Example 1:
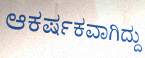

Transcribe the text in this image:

ಆಕರ್ಷಕವಾಗಿದ್ದು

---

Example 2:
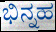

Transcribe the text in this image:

ಭಿನ್ನಹ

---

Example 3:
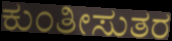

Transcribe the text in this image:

ಕುಂತೀಸುತರ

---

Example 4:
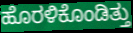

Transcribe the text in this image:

ಹೊರಳಿಕೊಂಡಿತ್ತು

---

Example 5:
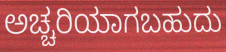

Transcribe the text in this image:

ಅಚ್ಚರಿಯಾಗಬಹುದು